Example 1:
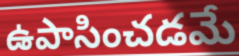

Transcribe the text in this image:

ఉపాసించడమే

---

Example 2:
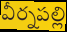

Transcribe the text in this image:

వీర్నపల్లి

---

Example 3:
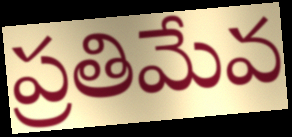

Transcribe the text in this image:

ప్రతిమేవ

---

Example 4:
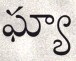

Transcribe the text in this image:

ఘ్యా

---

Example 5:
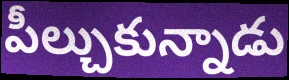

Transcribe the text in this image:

పీల్చుకున్నాడు